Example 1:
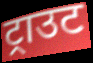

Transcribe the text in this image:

ट्राउट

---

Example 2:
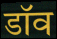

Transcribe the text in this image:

डॉव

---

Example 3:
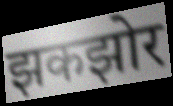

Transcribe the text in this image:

झकझोर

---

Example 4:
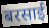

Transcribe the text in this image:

बरसाई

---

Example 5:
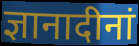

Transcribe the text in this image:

ज्ञानादीनां